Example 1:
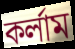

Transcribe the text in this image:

কর্লাম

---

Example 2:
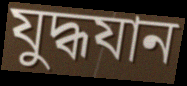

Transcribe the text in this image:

যুদ্ধযান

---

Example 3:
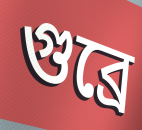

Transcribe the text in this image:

গুব্রে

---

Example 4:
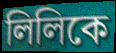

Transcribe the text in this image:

লিলিকে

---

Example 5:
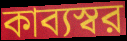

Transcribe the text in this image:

কাব্যস্বর